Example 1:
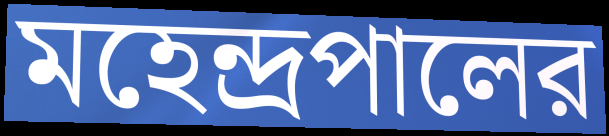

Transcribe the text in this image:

মহেন্দ্রপালের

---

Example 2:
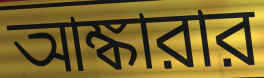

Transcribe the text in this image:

আঙ্কারার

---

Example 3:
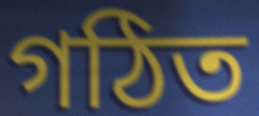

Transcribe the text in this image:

গঠিত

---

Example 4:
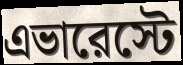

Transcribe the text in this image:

এভারেস্টে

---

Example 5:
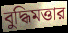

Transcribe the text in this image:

বুদ্ধিমত্তার